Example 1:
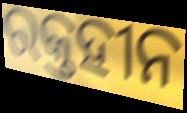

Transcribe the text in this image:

ରକ୍ତହୀନ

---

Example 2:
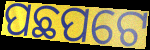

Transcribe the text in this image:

ପଛପଟେ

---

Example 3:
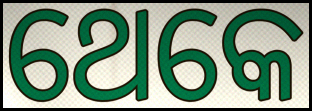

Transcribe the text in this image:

ଥେକେ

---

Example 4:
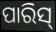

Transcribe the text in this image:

ପାରିସ୍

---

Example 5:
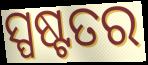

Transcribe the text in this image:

ସ୍ପଷ୍ଟତର